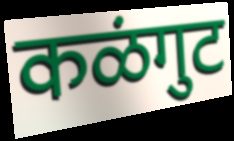
कळंगुट